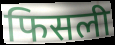
फिसली